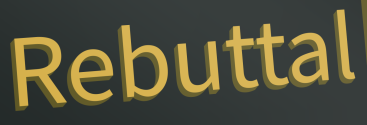
Rebuttal